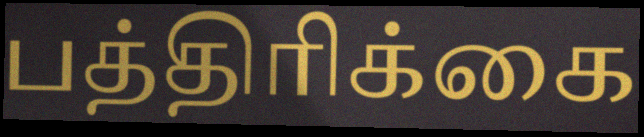
பத்திரிக்கை